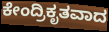
ಕೇಂದ್ರಿಕೃತವಾದ